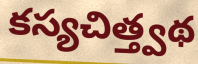
కస్యచిత్త్వథ